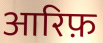
आरिफ़